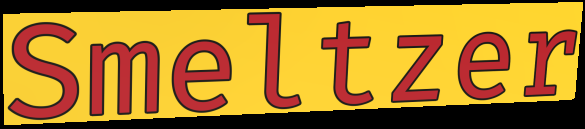
Smeltzer